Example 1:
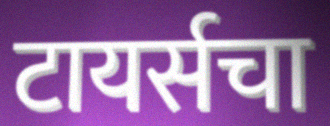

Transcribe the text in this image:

टायर्सचा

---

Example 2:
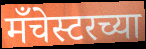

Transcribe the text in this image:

मँचेस्टरच्या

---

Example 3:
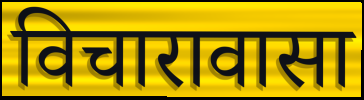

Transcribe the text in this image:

विचारावासा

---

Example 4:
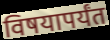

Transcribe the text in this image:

विषयापर्यंत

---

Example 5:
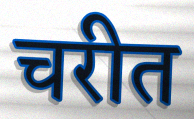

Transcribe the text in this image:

चरीत